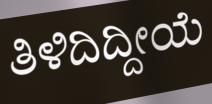
ತಿಳಿದಿದ್ದೀಯೆ